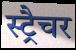
स्ट्रैचर